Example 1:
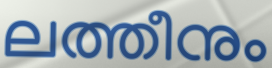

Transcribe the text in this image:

ലത്തീനും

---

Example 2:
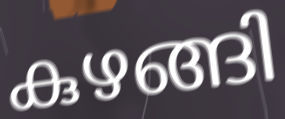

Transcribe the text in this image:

കുഴങ്ങി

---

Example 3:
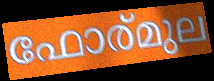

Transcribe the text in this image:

ഫോര്മുല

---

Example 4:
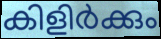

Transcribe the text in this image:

കിളിർക്കും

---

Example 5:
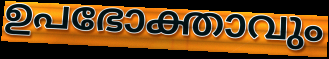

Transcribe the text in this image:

ഉപഭോക്താവും